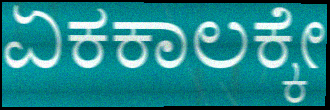
ಏಕಕಾಲಕ್ಕೇ